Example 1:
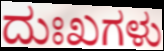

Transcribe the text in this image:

ದುಃಖಗಳು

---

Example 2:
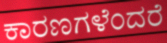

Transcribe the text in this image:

ಕಾರಣಗಳೆಂದರೆ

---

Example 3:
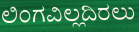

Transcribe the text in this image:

ಲಿಂಗವಿಲ್ಲದಿರಲು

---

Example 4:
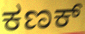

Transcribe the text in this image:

ಕಣಕ್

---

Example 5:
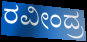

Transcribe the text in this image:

ರವೀಂದ್ರ